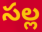
సల్ల